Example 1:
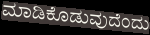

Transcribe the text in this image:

ಮಾಡಿಕೊಡುವುದೆಂದು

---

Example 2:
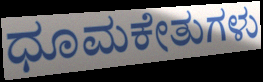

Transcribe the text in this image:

ಧೂಮಕೇತುಗಳು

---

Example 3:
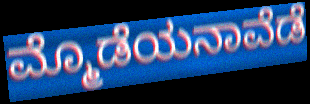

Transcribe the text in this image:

ಮ್ಮೊಡೆಯನಾವೆಡೆ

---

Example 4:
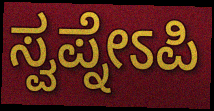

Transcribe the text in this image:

ಸ್ವಪ್ನೇಽಪಿ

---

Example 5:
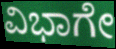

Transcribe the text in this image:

ವಿಭಾಗೇ